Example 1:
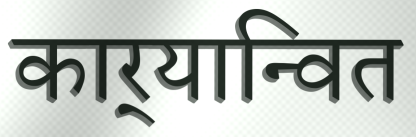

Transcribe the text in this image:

कार्यान्वित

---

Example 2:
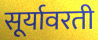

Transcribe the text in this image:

सूर्यावरती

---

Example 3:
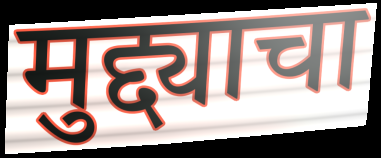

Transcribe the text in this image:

मुद्द्याचा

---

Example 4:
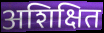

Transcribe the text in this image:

अशिक्षित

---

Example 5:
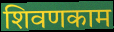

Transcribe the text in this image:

शिवणकाम